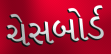
ચેસબોર્ડ